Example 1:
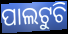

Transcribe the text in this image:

ପାଲଟୁଚି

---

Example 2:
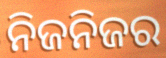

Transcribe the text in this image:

ନିଜନିଜର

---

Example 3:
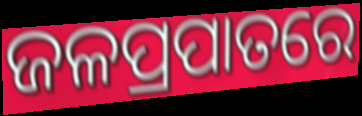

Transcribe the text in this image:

ଜଳପ୍ରପାତରେ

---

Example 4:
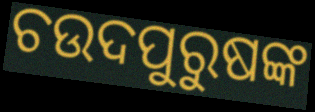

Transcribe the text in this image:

ଚଉଦପୁରୁଷଙ୍କ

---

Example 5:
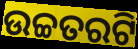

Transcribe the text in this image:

ଉଚ୍ଚତରଟି